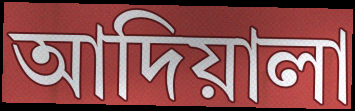
আদিয়ালা